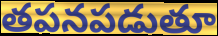
తపనపడుతూ